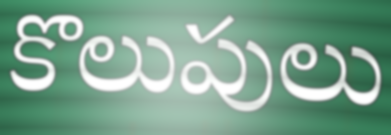
కొలుపులు